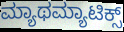
ಮ್ಯಾಥಮ್ಯಾಟಿಕ್ಸ್